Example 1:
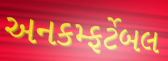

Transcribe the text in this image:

અનકમ્ફર્ટેબલ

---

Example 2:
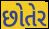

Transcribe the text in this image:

છોતેર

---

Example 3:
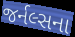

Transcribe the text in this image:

જર્નલ્સના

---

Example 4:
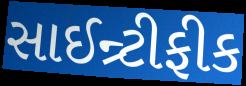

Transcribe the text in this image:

સાઈન્ર્ટીફીક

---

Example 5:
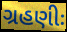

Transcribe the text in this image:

ગ્રહણીઃ